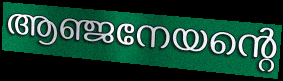
ആഞ്ജനേയന്റെ